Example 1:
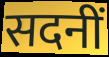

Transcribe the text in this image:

सदनीं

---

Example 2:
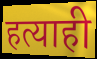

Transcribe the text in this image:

हत्याही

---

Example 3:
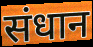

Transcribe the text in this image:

संधान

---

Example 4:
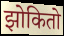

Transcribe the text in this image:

झोकितो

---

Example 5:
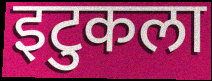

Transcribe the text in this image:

इटुकला